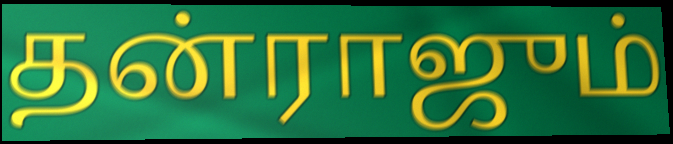
தன்ராஜும்